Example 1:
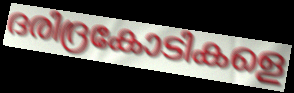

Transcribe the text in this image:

ദരിദ്രകോടികളെ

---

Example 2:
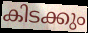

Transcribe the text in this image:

കിടക്കും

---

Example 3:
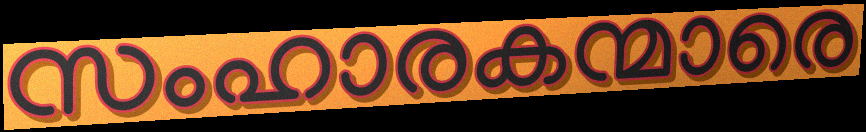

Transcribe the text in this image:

സംഹാരകന്മാരെ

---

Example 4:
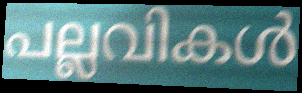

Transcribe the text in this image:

പല്ലവികൾ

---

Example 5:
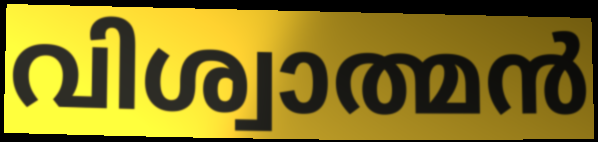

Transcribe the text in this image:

വിശ്വാത്മൻ